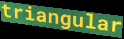
triangular